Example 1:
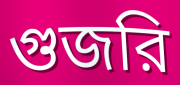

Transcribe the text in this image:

গুজরি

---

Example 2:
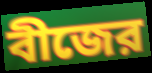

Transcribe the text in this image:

বীজের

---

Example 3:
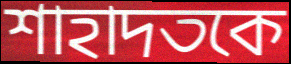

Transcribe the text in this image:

শাহাদতকে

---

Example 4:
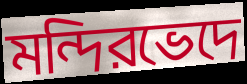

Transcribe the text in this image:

মন্দিরভেদে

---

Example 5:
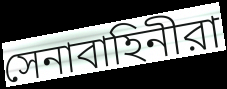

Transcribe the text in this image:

সেনাবাহিনীরা